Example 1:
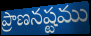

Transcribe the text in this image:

ప్రాణనష్టము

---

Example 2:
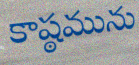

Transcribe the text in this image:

కాష్ఠమును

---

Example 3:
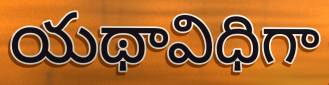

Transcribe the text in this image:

యథావిధిగా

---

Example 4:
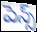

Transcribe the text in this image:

పెన్స్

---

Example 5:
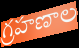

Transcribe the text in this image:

గ్రహణాల